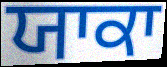
ਯਾਕਾ